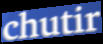
chutir